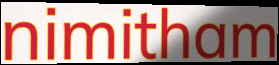
nimitham